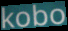
kobo